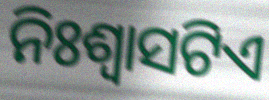
ନିଃଶ୍ୱାସଟିଏ